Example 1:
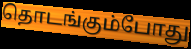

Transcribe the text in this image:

தொடங்கும்போது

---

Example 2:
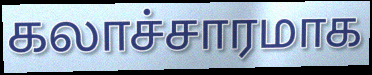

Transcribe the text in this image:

கலாச்சாரமாக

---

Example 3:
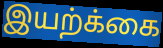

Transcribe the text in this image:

இயற்க்கை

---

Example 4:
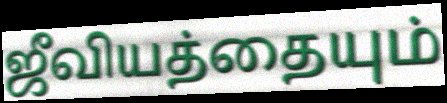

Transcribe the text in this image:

ஜீவியத்தையும்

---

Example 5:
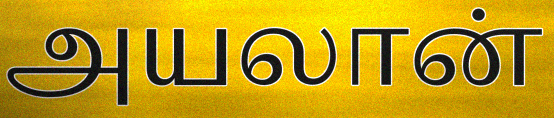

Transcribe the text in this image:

அயலான்